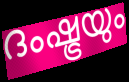
ദംഷ്ട്രയും